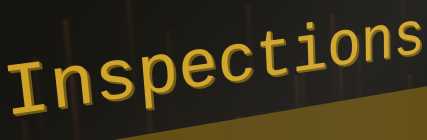
Inspections